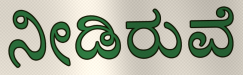
ನೀಡಿರುವೆ